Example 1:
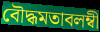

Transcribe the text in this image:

বৌদ্ধমতাবলম্বী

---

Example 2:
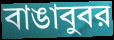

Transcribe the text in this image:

বাঙাবুবর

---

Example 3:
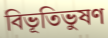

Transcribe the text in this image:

বিভূতিভুষণ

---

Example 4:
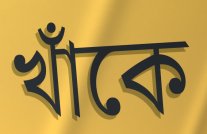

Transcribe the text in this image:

খাঁকে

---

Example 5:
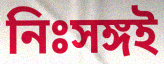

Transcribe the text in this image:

নিঃসঙ্গই